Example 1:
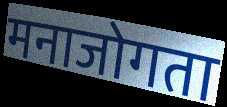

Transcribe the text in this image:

मनाजोगता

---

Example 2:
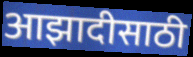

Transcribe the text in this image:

आझादीसाठी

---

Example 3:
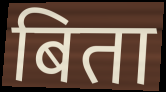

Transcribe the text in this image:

बिता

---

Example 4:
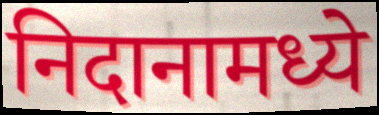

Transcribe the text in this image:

निदानामध्ये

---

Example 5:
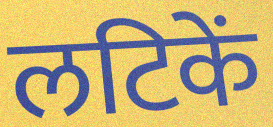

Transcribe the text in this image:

लटिकें